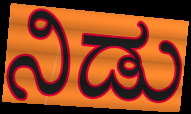
ನಿಡು